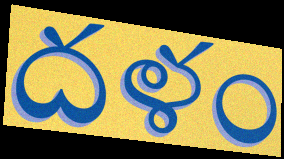
దళం